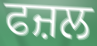
ਫਜ਼ਲ